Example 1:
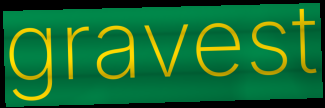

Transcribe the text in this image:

gravest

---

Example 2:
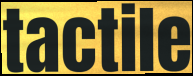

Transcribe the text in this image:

tactile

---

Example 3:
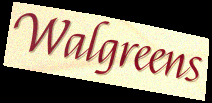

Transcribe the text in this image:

Walgreens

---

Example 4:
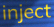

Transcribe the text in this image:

inject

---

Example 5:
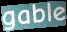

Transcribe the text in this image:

gable